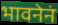
भावनेनं